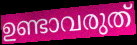
ഉണ്ടാവരുത്